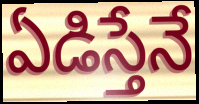
ఏడిస్తేనే